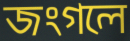
জংগলে